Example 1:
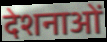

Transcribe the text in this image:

देशनाओं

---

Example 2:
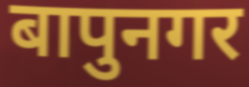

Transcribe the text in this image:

बापुनगर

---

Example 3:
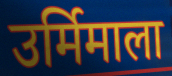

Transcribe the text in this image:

उर्मिमाला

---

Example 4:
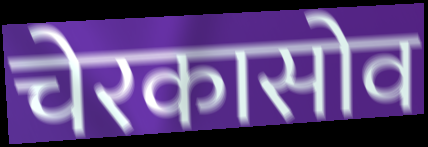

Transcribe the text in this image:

चेरकासोव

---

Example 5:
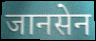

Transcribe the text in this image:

जानसेन